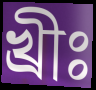
খ্রীঃ